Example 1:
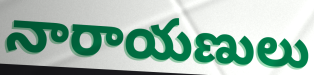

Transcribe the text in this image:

నారాయణులు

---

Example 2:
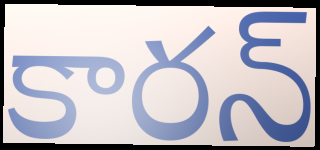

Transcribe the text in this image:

కారన్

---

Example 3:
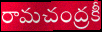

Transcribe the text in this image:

రామచంద్రకీ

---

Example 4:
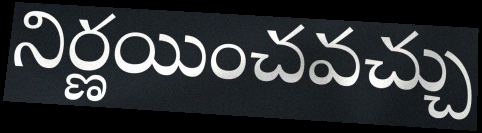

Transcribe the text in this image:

నిర్ణయించవచ్చు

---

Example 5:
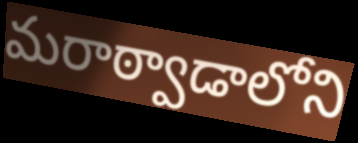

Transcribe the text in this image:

మరాఠ్వాడాలోని